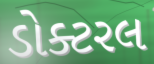
ડોક્ટરલ